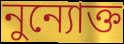
নুন্যোক্ত